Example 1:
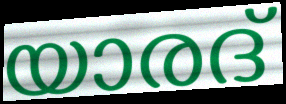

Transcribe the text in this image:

യാരദ്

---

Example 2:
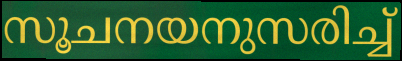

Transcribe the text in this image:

സൂചനയനുസരിച്ച്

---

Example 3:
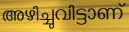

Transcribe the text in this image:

അഴിച്ചുവിട്ടാണ്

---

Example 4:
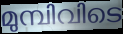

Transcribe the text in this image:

മുമ്പിവിടെ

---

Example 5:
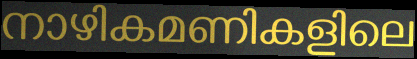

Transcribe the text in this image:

നാഴികമണികളിലെ